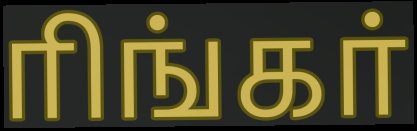
ரிங்கர்